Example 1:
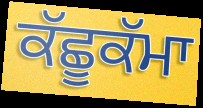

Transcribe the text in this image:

ਕੱਛੂਕੱਮਾ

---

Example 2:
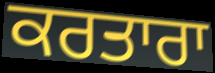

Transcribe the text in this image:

ਕਰਤਾਰਾ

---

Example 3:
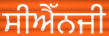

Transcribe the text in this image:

ਸੀਐੱਨਜੀ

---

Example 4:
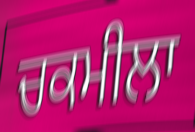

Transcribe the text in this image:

ਚਕਮੀਲਾ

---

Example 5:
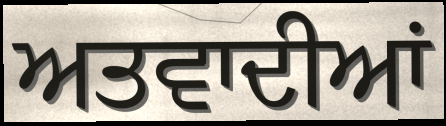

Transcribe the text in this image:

ਅਤਵਾਦੀਆਂ